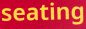
seating